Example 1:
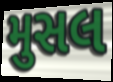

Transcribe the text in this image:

મુસલ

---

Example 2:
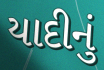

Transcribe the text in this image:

યાદીનું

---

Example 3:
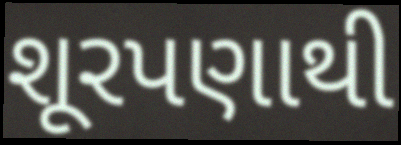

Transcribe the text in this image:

શૂરપણાથી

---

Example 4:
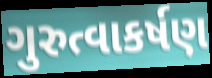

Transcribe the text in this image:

ગુરુત્વાકર્ષણ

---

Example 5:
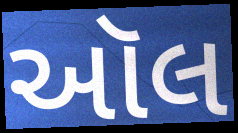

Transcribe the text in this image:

ઑલ